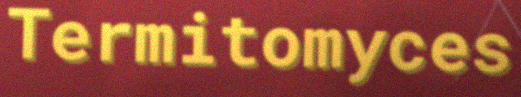
Termitomyces